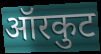
ऑरकुट